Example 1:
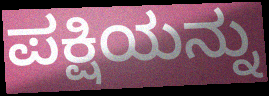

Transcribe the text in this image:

ಪಕ್ಷಿಯನ್ನು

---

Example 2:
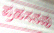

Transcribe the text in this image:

ಪ್ರಹಸನವು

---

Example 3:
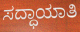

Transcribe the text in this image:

ಸದ್ಧಾಯಾತಿ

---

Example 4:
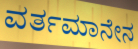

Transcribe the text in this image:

ವರ್ತಮಾನೇನ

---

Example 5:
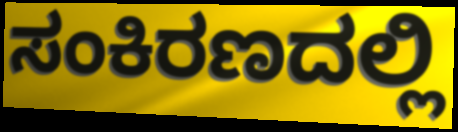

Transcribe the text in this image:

ಸಂಕಿರಣದಲ್ಲಿ